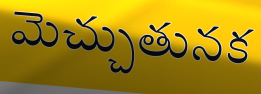
మెచ్చుతునక